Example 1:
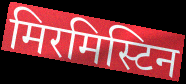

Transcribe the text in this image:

मिरमिस्टिन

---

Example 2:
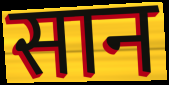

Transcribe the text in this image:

सान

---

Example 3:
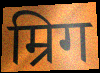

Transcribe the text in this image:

म्रिग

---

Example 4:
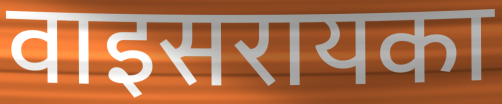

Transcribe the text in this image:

वाइसरायका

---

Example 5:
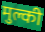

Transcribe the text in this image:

मुल्की